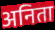
अनिता